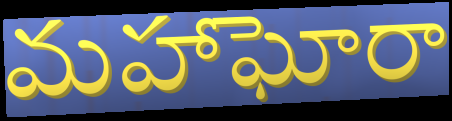
మహాఘోరా